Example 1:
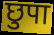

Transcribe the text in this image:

छुपा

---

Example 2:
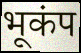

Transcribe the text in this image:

भूकंप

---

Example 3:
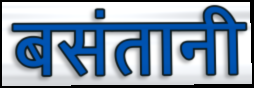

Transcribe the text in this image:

बसंतानी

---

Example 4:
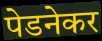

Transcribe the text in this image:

पेडनेकर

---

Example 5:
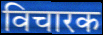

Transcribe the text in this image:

विचारक